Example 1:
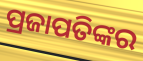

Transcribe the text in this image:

ପ୍ରଜାପତିଙ୍କର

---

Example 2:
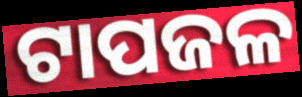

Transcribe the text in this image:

ଟାପଜଳ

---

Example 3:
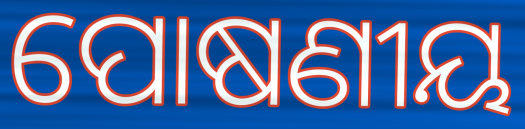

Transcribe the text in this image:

ପୋଷଣୀୟ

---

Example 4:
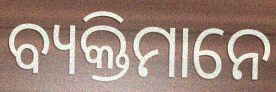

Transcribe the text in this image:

ବ୍ୟକ୍ତିମାନେ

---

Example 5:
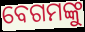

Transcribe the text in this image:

ବେଗମଙ୍କୁ